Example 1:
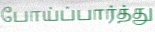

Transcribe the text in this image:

போய்ப்பார்த்து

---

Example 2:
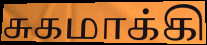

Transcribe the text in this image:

சுகமாக்கி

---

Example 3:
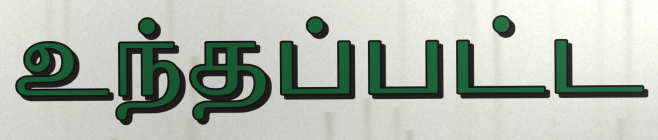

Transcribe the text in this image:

உந்தப்பட்ட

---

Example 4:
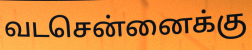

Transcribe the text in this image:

வடசென்னைக்கு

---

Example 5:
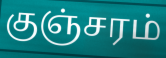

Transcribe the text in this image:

குஞ்சரம்